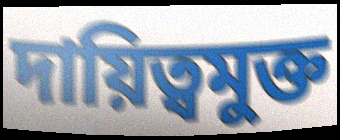
দায়িত্বমুক্ত